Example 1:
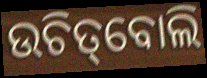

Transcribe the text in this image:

ଉଚିତ୍‌ବୋଲି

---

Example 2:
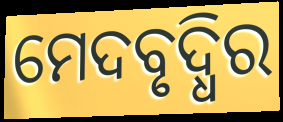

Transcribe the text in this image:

ମେଦବୃଦ୍ଧିର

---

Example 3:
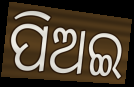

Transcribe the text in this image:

ପିଅଇ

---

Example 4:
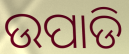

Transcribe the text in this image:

ଉପାଡି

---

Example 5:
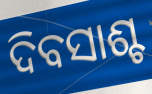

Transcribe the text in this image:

ଦିବସାଶ୍ଚ